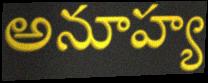
అనూహ్య